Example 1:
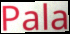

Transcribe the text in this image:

Pala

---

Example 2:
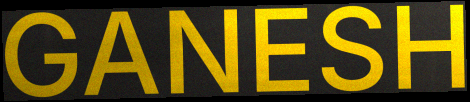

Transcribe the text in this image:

GANESH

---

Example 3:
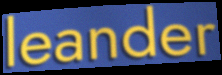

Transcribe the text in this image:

leander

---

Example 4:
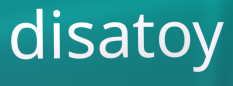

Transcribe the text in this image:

disatoy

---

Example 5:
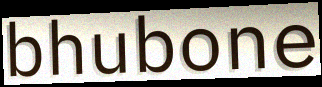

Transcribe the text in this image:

bhubone